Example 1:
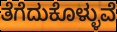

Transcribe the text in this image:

ತೆಗೆದುಕೊಳ್ಳುವೆ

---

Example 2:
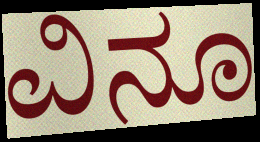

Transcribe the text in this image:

ವಿನೂ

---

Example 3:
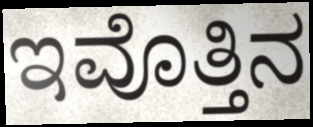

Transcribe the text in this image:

ಇವೊತ್ತಿನ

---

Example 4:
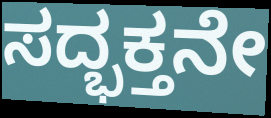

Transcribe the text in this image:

ಸದ್ಭಕ್ತನೇ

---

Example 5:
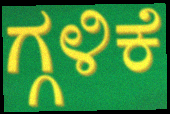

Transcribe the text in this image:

ಗ್ಗಳಿಕೆ